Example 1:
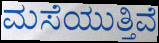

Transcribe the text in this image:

ಮಸೆಯುತ್ತಿವೆ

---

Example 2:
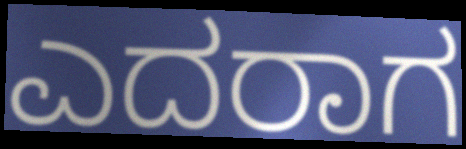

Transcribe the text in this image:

ಎದರಾಗ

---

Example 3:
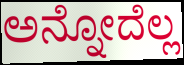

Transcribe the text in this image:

ಅನ್ನೋದೆಲ್ಲ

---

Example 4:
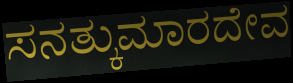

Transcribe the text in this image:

ಸನತ್ಕುಮಾರದೇವ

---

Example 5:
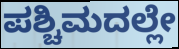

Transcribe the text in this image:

ಪಶ್ಚಿಮದಲ್ಲೇ